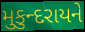
મુકુન્દરાયને